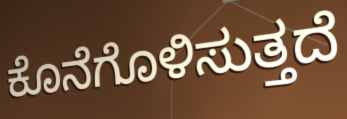
ಕೊನೆಗೊಳಿಸುತ್ತದೆ